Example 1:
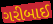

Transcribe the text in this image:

ગરીબાઈ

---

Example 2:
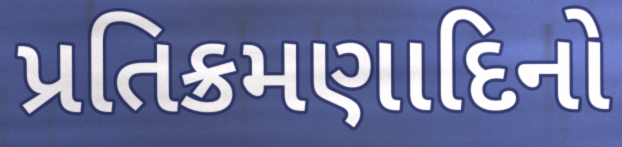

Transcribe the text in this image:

પ્રતિક્રમણાદિનો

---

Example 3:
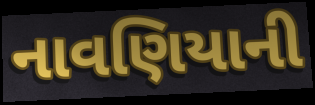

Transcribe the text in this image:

નાવણિયાની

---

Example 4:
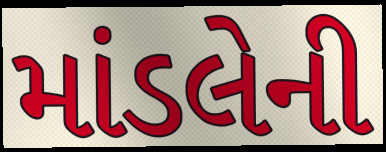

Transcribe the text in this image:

માંડલેની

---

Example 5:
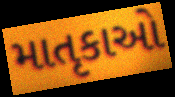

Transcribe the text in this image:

માતૃકાઓ